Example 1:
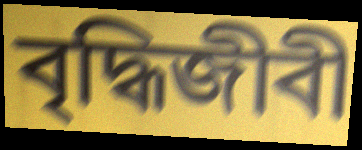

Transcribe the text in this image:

বৃদ্ধিজীবী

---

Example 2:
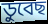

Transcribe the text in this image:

ডুবেছ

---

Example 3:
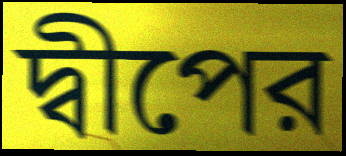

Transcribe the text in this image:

দ্বীপের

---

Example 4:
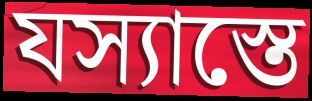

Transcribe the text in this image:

যস্যাস্তে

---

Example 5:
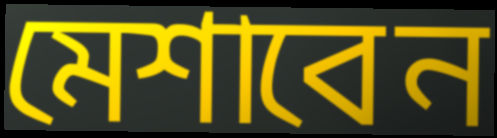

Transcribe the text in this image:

মেশাবেন